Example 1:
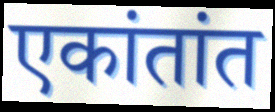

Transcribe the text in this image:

एकांतांत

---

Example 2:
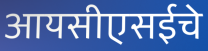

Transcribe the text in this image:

आयसीएसईचे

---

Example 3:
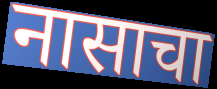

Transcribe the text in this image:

नासाचा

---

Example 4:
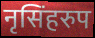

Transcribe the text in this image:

नृसिंहरुप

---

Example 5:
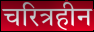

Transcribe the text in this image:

चरित्रहीन